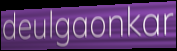
deulgaonkar